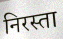
निरस्ता